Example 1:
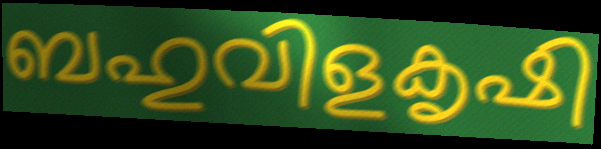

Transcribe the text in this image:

ബഹുവിളകൃഷി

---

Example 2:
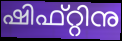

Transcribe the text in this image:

ഷിഫ്റ്റിനു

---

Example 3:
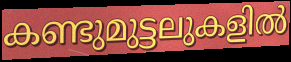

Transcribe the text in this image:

കണ്ടുമുട്ടലുകളിൽ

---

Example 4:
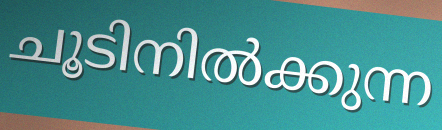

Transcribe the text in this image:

ചൂടിനിൽക്കുന്ന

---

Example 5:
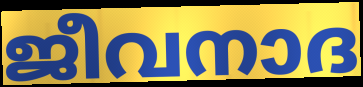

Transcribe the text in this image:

ജീവനാദ